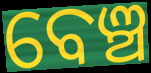
ବେଞ୍ଚ